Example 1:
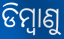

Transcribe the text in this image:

ଡିମ୍ୱାଣୁ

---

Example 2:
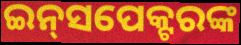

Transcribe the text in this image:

ଇନ୍‍ସପେକ୍ଟରଙ୍କ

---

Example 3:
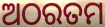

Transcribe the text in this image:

ଅଠରତମ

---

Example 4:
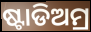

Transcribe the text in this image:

ଷ୍ଟାଡିଅମ୍ର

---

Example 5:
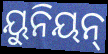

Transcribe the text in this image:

ୟୁନିୟନ୍